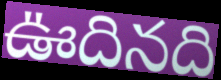
ఊదినది